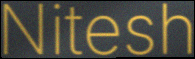
Nitesh